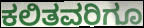
ಕಲಿತವರಿಗೂ